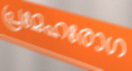
പ്രമേഹരോഗ